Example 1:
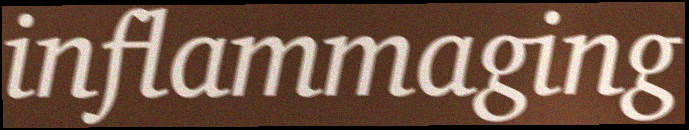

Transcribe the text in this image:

inflammaging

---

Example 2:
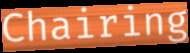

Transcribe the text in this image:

Chairing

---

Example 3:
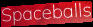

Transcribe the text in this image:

Spaceballs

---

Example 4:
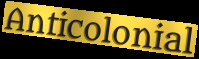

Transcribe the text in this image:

Anticolonial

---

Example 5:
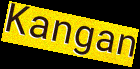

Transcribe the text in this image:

Kangan